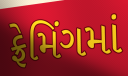
ફ્રેમિંગમાં